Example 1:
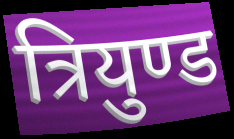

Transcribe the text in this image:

त्रियुण्ड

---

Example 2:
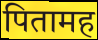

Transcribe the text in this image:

पितामह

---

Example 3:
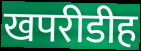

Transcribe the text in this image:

खपरीडीह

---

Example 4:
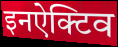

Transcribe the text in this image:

इनऐक्टिव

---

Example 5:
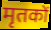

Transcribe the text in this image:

मृतकों